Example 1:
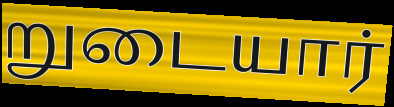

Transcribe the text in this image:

றுடையார்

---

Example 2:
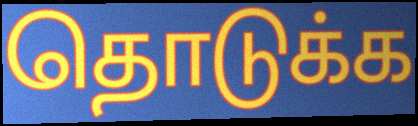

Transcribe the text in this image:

தொடுக்க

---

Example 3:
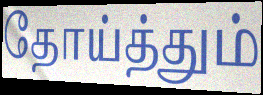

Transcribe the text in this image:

தோய்த்தும்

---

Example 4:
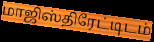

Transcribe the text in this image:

மாஜிஸ்திரேட்டிடம்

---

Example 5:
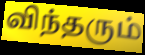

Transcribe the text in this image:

விந்தரும்